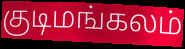
குடிமங்கலம்